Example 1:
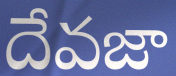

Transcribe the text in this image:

దేవజా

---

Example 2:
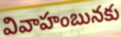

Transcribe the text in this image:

వివాహంబునకు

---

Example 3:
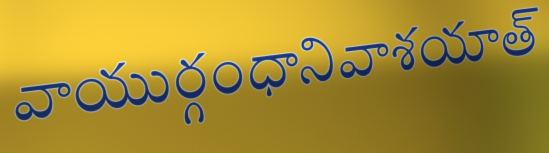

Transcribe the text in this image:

వాయుర్గంధానివాశయాత్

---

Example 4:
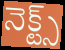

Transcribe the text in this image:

నెక్ట్స్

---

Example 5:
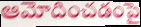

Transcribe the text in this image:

ఆమోదించడంపై